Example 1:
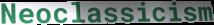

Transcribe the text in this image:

Neoclassicism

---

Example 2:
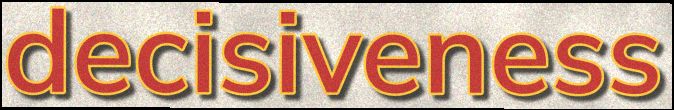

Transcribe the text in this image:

decisiveness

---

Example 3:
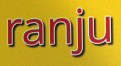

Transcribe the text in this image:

ranju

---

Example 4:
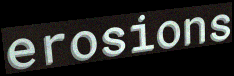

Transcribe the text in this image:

erosions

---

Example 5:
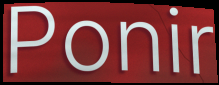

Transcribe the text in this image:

Ponir